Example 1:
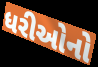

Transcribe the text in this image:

ધરીઓનો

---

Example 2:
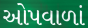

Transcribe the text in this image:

ઓપવાળાં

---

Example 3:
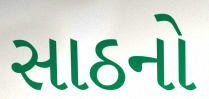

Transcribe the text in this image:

સાઠનો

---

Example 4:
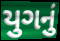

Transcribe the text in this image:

યુગનું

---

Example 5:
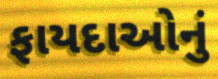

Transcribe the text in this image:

ફાયદાઓનું